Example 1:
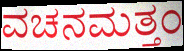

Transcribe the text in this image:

ವಚನಮತ್ತಂ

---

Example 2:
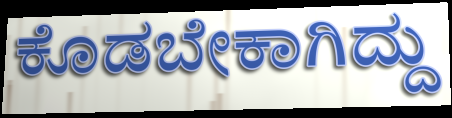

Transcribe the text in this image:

ಕೊಡಬೇಕಾಗಿದ್ದು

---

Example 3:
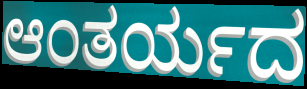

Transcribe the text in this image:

ಆಂತರ್ಯದ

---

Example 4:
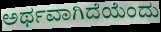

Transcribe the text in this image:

ಅರ್ಥವಾಗಿದೆಯೆಂದು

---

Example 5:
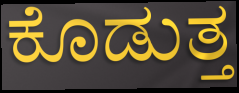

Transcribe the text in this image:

ಕೊಡುತ್ತ